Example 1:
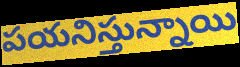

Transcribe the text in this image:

పయనిస్తున్నాయి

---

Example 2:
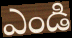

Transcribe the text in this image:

ఎండి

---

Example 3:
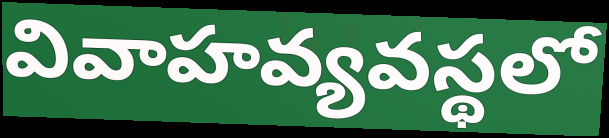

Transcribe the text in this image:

వివాహవ్యవస్థలో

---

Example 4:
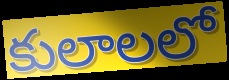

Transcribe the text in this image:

కులాలలో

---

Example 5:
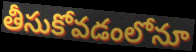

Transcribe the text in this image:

తీసుకోవడంలోనూ